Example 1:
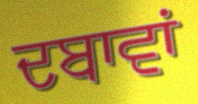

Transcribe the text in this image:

ਦਬਾਵਾਂ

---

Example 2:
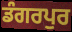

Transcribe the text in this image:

ਡੰਗਰਪੁਰ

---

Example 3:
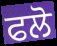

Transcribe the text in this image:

ਫਲੋ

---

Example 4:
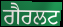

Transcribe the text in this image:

ਗੈਰਲਟ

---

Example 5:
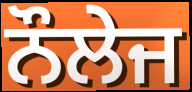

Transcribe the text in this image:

ਨੌਲੇਜ